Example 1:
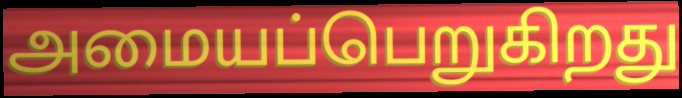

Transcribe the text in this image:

அமையப்பெறுகிறது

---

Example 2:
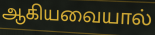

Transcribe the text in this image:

ஆகியவையால்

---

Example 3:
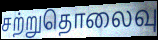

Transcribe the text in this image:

சற்றுதொலைவு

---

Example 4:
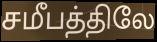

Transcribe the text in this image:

சமீபத்திலே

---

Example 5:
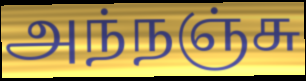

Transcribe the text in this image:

அந்நஞ்சு